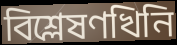
বিশ্লেষণখিনি